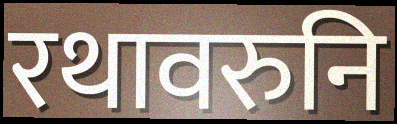
रथावरुनि